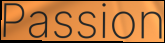
Passion